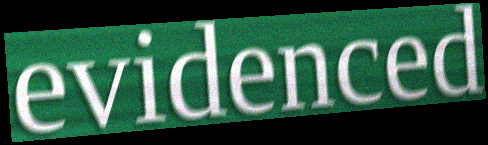
evidenced